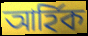
আৰ্হিক